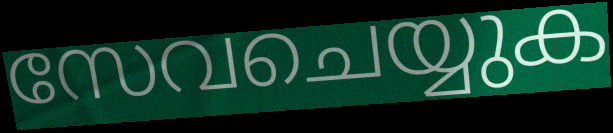
സേവചെയ്യുക